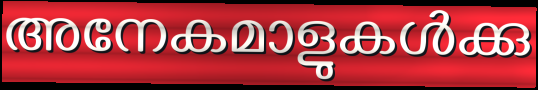
അനേകമാളുകൾക്കു